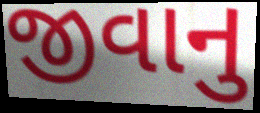
જીવાનુ